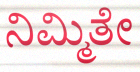
ನಿಮ್ಮಿತೇ